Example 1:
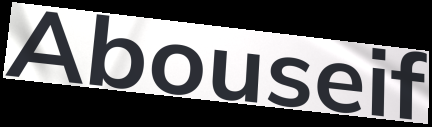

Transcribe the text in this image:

Abouseif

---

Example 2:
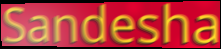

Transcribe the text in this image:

Sandesha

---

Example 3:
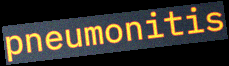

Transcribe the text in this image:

pneumonitis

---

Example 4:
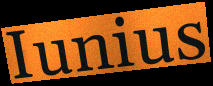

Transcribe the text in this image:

Iunius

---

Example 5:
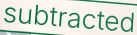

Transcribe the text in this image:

subtracted